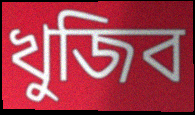
খুজিব